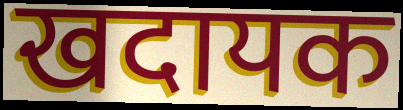
खदायक